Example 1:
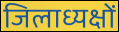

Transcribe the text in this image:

जिलाध्यक्षों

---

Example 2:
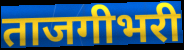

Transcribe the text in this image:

ताजगीभरी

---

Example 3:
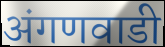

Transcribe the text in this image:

अंगणवाडी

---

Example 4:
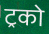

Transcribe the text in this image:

ट्रको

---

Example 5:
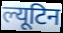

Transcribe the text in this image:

ल्यूटिन